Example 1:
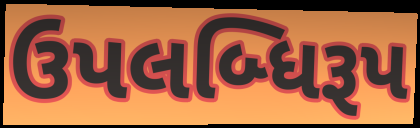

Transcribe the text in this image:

ઉપલબ્ધિરૂપ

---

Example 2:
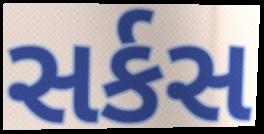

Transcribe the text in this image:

સર્કસ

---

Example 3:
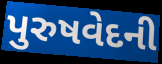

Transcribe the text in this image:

પુરુષવેદની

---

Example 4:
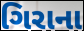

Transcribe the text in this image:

ગિરાના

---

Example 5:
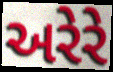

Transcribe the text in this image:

અરેરે